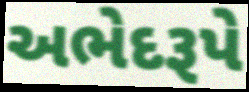
અભેદરૂપે